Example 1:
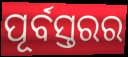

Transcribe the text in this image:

ପୂର୍ବସ୍ତରର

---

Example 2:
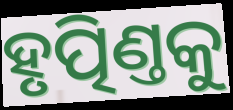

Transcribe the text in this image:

ହୃତ୍ପିଣ୍ତକୁ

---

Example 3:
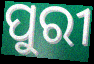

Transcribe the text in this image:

ପୁରୀ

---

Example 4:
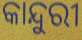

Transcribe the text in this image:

କାନ୍ଦୁରୀ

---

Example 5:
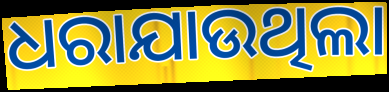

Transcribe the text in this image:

ଧରାଯାଉଥିଲା